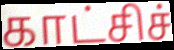
காட்சிச்